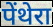
पेंथेरा